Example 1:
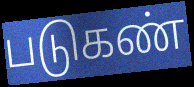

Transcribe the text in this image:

படுகண்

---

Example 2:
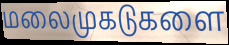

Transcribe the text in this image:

மலைமுகடுகளை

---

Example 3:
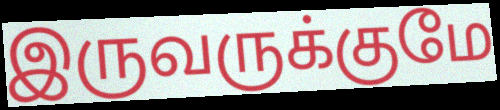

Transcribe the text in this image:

இருவருக்குமே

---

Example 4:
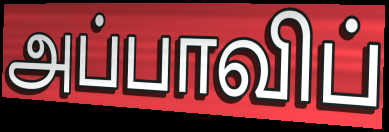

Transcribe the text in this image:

அப்பாவிப்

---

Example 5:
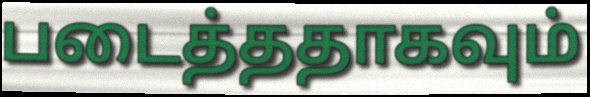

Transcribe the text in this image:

படைத்ததாகவும்